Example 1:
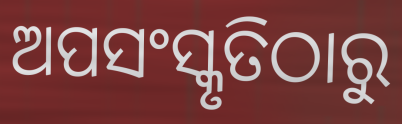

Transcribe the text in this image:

ଅପସଂସ୍କୃତିଠାରୁ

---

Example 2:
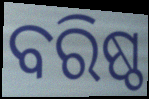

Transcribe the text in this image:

ବରିଷ୍ଠ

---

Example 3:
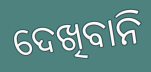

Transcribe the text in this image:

ଦେଖିବାନି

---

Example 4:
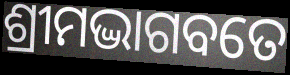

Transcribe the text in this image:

ଶ୍ରୀମଦ୍ଭାଗବତେ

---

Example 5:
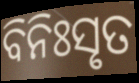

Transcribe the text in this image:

ବିନିଃସୃତ